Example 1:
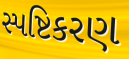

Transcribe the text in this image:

સ્પષ્ટિકરણ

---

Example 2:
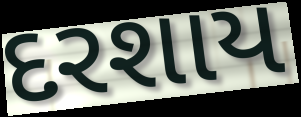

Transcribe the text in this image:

દરશાય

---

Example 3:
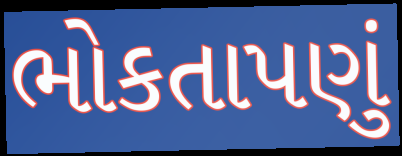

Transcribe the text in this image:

ભોકતાપણું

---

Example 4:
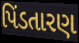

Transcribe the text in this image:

પિંડતારણ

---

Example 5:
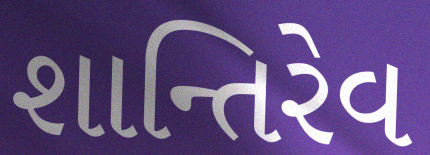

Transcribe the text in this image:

શાન્તિરેવ